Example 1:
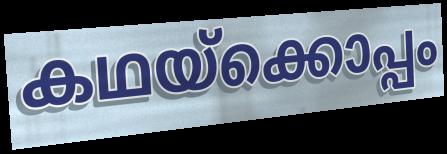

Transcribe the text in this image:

കഥയ്ക്കൊപ്പം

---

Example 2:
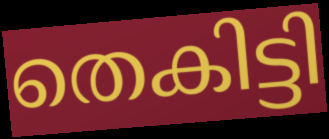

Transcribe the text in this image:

തെകിട്ടി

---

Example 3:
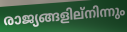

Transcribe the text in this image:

രാജ്യങ്ങളില്നിന്നും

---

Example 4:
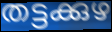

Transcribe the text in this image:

തട്ടക്കുഴ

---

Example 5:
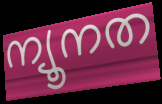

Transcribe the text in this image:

ന്യൂനത